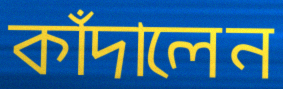
কাঁদালেন